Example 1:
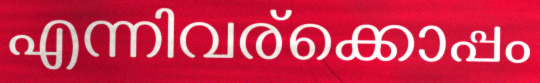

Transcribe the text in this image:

എന്നിവര്ക്കൊപ്പം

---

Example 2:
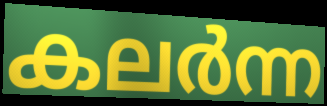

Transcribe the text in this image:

കലർന്ന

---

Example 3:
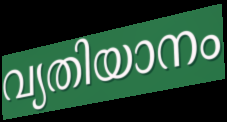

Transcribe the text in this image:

വ്യതിയാനം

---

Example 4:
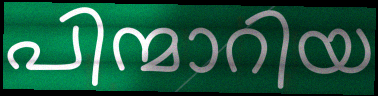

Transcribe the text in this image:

പിന്മാറിയ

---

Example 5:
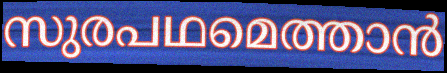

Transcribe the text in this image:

സുരപഥമെത്താൻ